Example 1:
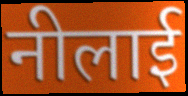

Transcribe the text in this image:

नीलाई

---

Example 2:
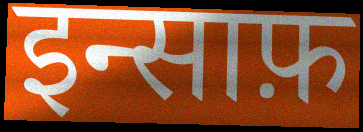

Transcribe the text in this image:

इन्साफ़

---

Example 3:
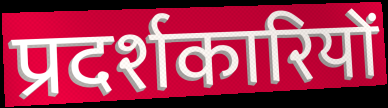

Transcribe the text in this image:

प्रदर्शकारियों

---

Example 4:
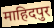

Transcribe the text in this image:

माहिदपुर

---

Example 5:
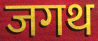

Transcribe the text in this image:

जगथ